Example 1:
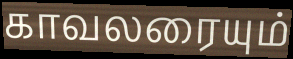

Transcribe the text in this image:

காவலரையும்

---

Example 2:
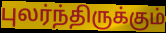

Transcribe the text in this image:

புலர்ந்திருக்கும்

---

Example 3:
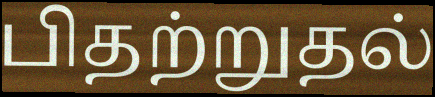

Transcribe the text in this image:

பிதற்றுதல்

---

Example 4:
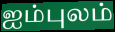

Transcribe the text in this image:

ஐம்புலம்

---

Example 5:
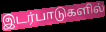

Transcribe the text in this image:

இடர்பாடுகளில்